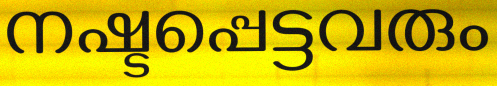
നഷ്ടപ്പെട്ടവരും